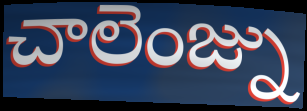
చాలెంజ్ను